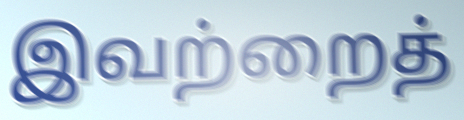
இவற்றைத்